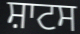
ਸ਼ਾਟਸ